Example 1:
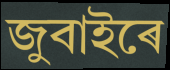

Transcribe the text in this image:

জুবাইৰে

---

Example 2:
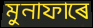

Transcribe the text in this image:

মুনাফাৰে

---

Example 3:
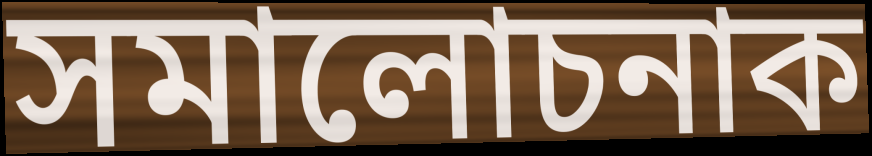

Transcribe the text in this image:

সমালোচনাক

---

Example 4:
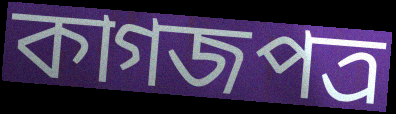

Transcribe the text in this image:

কাগজপত্ৰ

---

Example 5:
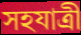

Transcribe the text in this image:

সহযাত্ৰী